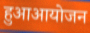
हुआआयोजन